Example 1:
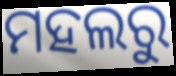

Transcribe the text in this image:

ମହଲରୁ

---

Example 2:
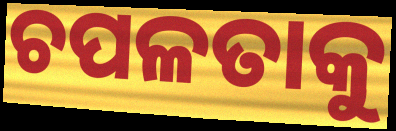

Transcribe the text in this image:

ଚପଳତାକୁ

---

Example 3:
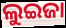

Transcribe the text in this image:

ଲୁଇଜା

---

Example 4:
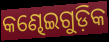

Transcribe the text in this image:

କଣ୍ଢେଇଗୁଡ଼ିକ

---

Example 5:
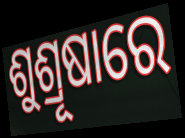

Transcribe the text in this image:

ଶୁଶ୍ରୂଷାରେ